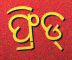
ଫ୍ରିଡ୍